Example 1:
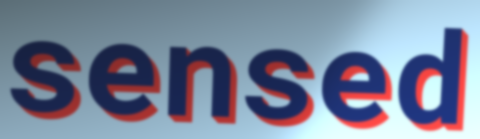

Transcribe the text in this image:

sensed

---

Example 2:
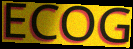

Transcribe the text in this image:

ECOG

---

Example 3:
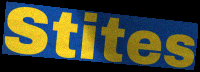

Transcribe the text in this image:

Stites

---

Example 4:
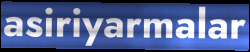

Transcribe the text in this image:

asiriyarmalar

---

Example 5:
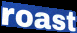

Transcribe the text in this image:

roast